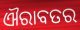
ଐରାବତର